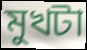
মুখটা